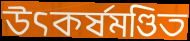
উৎকর্ষমণ্ডিত